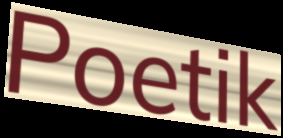
Poetik